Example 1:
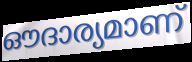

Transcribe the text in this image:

ഔദാര്യമാണ്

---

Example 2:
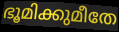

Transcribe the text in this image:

ഭൂമിക്കുമീതേ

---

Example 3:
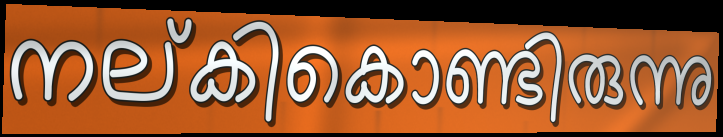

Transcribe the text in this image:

നല്കികൊണ്ടിരുന്നു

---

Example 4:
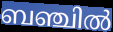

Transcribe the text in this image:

ബഞ്ചിൽ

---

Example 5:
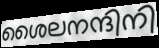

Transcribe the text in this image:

ശൈലനന്ദിനി